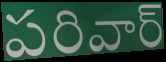
పరివార్